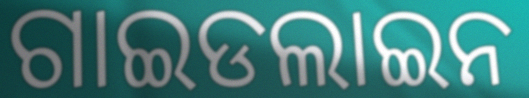
ଗାଇଡଲାଇନ